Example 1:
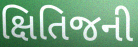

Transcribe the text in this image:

ક્ષિતિજની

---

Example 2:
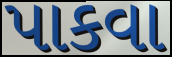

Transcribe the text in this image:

પાકવા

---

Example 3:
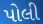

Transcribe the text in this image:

પોલી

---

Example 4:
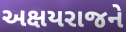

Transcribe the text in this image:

અક્ષયરાજને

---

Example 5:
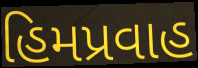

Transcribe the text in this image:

હિમપ્રવાહ